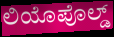
ಲಿಯೊಪೊಲ್ಡ್